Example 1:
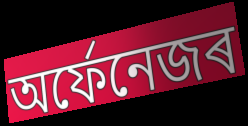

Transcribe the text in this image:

অৰ্ফেনেজৰ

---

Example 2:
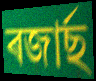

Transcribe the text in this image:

ৰজাৰ্ছ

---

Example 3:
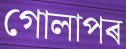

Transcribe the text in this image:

গোলাপৰ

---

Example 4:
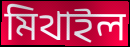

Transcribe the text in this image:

মিথাইল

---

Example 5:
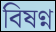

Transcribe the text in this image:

বিষণ্ন